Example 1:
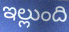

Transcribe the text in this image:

ఇల్లుంది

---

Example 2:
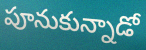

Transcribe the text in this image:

పూనుకున్నాడో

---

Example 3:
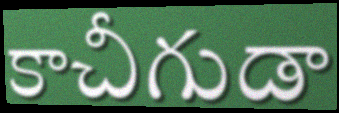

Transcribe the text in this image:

కాచీగుడా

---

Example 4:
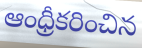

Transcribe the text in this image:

ఆంధ్రీకరించిన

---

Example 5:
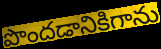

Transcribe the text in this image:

పొందడానికిగాను